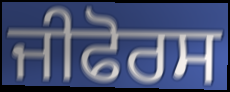
ਜੀਫੋਰਸ